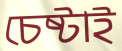
চেষ্টাই